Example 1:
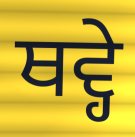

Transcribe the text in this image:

ਥਵ੍ਹੇ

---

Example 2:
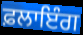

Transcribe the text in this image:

ਫ਼ਲਾਇੰਗ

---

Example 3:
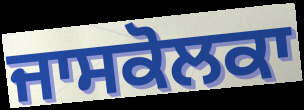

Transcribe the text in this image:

ਜਾਸਕੋਲਕਾ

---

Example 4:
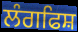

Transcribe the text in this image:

ਲੰਗਫਿਸ਼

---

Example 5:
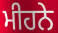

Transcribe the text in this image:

ਮੀਹਨੇ